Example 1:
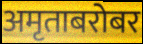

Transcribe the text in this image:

अमृताबरोबर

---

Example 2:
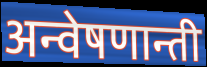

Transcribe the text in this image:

अन्वेषणान्ती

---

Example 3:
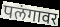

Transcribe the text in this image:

पलंगावर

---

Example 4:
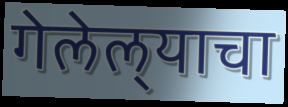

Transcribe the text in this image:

गेलेल्याचा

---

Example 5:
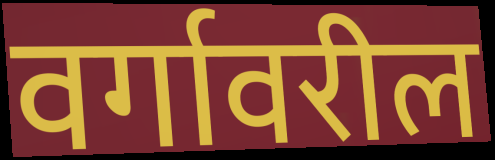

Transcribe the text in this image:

वर्गावरील